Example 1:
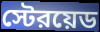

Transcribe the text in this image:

স্টেরয়েড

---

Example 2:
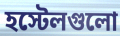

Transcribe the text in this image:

হস্টেলগুলো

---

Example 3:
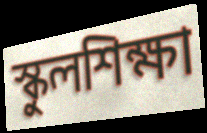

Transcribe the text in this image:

স্কুলশিক্ষা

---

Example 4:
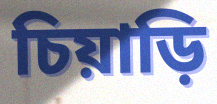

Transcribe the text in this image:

চিয়াড়ি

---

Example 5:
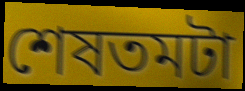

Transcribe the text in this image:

শেষতমটা